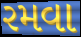
રમવા